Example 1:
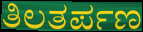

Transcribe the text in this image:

ತಿಲತರ್ಪಣ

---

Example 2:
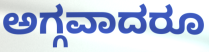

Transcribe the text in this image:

ಅಗ್ಗವಾದರೂ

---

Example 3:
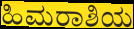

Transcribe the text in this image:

ಹಿಮರಾಶಿಯ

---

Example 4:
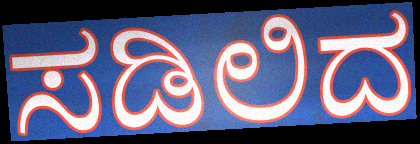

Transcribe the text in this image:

ಸಡಿಲಿದ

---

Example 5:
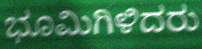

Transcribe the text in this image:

ಭೂಮಿಗಿಳಿದರು